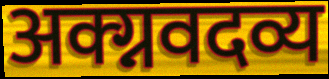
अक्ग्नवदव्य